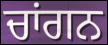
ਚਾਂਗਨ